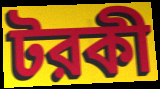
টরকী